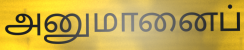
அனுமானைப்